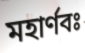
মহার্ণবঃ